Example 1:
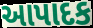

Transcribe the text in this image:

આપાદક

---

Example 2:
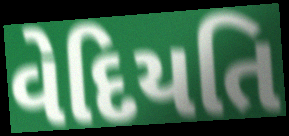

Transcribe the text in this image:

વેદિયતિ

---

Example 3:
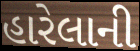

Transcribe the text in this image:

હારેલાની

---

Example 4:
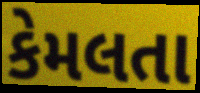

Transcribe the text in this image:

કેમલતા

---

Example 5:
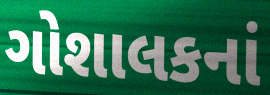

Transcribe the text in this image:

ગોશાલકનાં